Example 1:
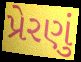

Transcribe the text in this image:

પ્રેરણું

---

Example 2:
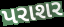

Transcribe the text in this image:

પરાશર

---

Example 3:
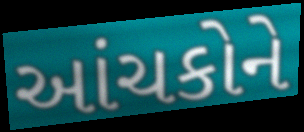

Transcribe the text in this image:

આંચકોને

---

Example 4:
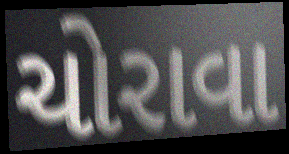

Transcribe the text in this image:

ચોરાવા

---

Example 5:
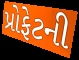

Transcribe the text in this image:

પ્રોફેટની